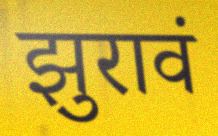
झुरावं